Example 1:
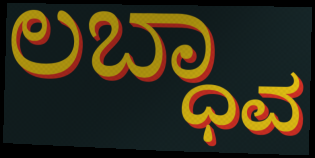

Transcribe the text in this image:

ಲಬ್ಧ್ವಾ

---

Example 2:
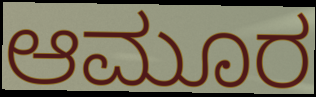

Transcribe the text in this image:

ಆಮೂರ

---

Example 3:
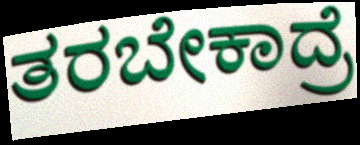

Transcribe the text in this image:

ತರಬೇಕಾದ್ರೆ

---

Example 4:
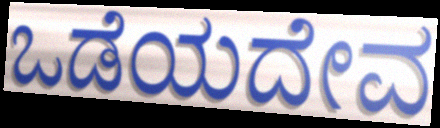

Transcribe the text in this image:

ಒಡೆಯದೇವ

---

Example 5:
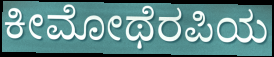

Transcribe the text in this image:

ಕೀಮೋಥೆರಪಿಯ